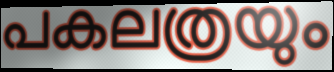
പകലത്രയും